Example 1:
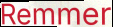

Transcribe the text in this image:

Remmer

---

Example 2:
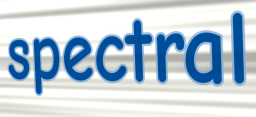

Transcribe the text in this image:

spectral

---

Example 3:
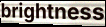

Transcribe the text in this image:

brightness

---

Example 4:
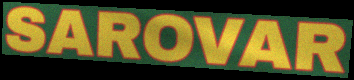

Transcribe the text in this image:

SAROVAR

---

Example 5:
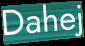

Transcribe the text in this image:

Dahej